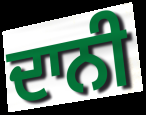
ਦਾਨੀ